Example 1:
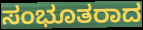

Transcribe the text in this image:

ಸಂಭೂತರಾದ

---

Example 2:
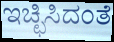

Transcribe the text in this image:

ಇಚ್ಛಿಸಿದಂತೆ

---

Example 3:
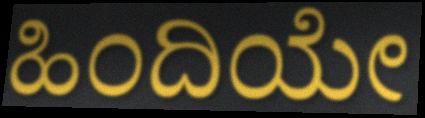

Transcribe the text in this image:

ಹಿಂದಿಯೇ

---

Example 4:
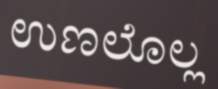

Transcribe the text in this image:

ಉಣಲೊಲ್ಲ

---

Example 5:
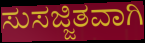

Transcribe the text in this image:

ಸುಸಜ್ಜಿತವಾಗಿ